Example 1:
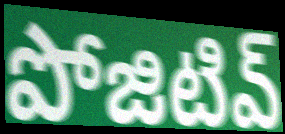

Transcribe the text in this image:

పోజిటివ్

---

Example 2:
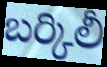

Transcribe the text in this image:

బర్కిలీ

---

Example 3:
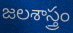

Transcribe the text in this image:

జలశాస్త్రం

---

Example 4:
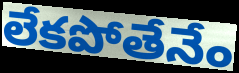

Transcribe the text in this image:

లేకపోతేనేం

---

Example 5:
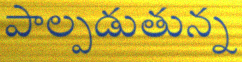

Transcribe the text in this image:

పాల్పడుతున్న